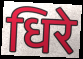
धिरे